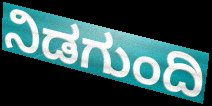
ನಿಡಗುಂದಿ